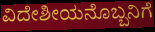
ವಿದೇಶೀಯನೊಬ್ಬನಿಗೆ